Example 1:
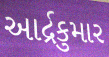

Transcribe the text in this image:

આર્દ્રકુમાર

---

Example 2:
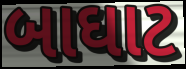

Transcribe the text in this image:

બાઘાટ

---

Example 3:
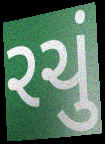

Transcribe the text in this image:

રચું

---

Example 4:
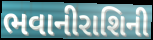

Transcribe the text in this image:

ભવાનીરાશિની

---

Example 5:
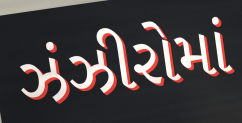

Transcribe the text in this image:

ઝંઝીરોમાં